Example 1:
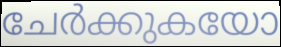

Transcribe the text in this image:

ചേർക്കുകയോ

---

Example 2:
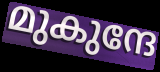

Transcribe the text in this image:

മുകുന്ദേ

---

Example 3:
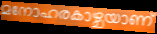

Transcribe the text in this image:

മനോഹരകാഴ്ചയാണ്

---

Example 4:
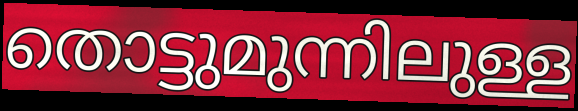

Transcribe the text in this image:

തൊട്ടുമുന്നിലുള്ള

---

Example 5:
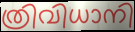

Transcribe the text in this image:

ത്രിവിധാനി